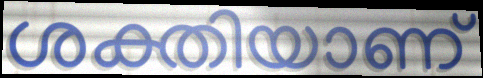
ശക്തിയാണ്